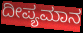
ದೀಪ್ಯಮಾನ